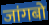
जांगबो